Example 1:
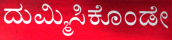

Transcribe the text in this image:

ದುಮ್ಮಿಸಿಕೊಂಡೇ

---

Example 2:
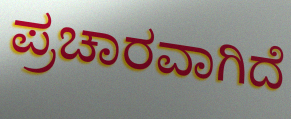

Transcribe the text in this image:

ಪ್ರಚಾರವಾಗಿದೆ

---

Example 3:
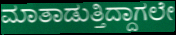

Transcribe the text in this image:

ಮಾತಾಡುತ್ತಿದ್ದಾಗಲೇ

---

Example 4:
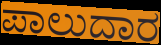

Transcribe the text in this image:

ಪಾಲುದಾರ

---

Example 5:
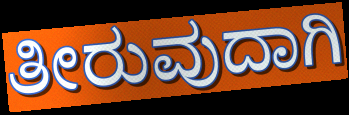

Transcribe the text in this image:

ತೀರುವುದಾಗಿ